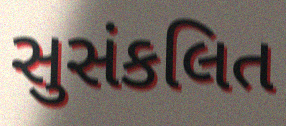
સુસંકલિત